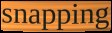
snapping